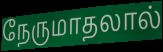
நேருமாதலால்